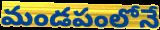
మండపంలోనే